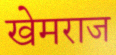
खेमराज